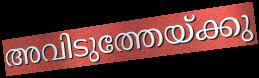
അവിടുത്തേയ്ക്കു